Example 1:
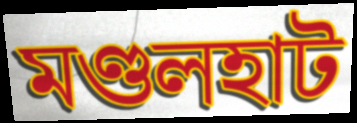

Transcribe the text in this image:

মণ্ডলহাট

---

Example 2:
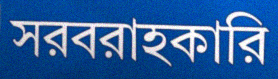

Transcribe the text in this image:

সরবরাহকারি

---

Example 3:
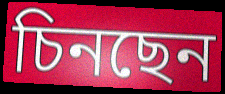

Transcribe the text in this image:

চিনছেন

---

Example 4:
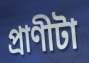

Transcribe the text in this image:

প্রাণীটা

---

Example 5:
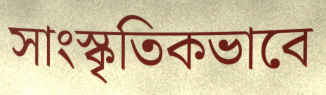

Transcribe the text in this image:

সাংস্কৃতিকভাবে